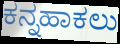
ಕನ್ನಹಾಕಲು